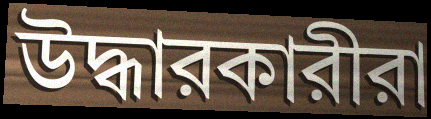
উদ্ধারকারীরা